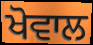
ਖੋਵਾਲ